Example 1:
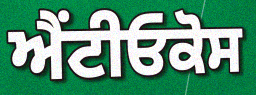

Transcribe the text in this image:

ਐਂਟੀਓਕੋਸ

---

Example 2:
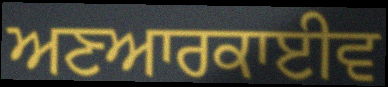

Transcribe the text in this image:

ਅਣਆਰਕਾਈਵ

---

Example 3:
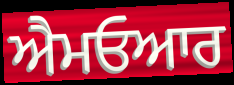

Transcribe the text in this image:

ਐਮਓਆਰ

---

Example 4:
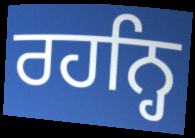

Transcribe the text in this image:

ਰਹਨ੍ਹਿ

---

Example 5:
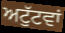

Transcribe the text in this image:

ਅਟੁੱਟਵਾਂ